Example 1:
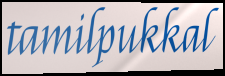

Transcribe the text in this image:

tamilpukkal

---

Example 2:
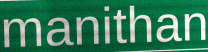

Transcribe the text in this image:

manithan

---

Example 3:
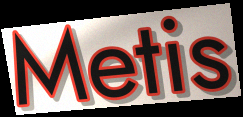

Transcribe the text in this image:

Metis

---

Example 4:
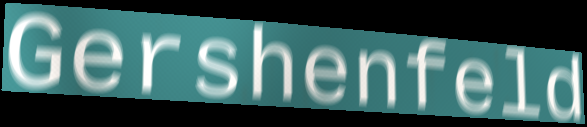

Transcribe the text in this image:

Gershenfeld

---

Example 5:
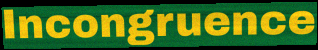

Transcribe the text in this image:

Incongruence